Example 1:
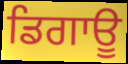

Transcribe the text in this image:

ਡਿਗਾਊ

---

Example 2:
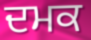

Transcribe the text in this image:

ਦਮਕ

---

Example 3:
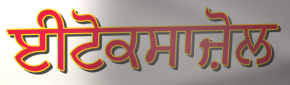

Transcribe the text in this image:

ਈਟੋਕਸਾਜ਼ੋਲ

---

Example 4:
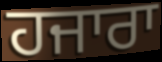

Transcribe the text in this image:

ਹਜਾਰਾ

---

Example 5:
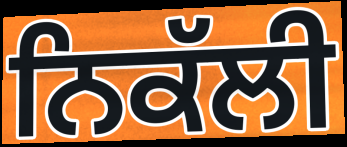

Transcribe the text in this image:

ਨਿਕੱਲੀ